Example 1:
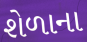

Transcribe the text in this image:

શેળાના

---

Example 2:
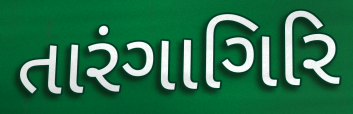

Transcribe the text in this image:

તારંગાગિરિ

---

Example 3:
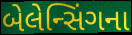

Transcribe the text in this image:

બેલેન્સિંગના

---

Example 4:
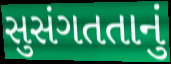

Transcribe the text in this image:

સુસંગતતાનું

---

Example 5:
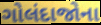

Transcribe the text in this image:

ગોલંદાજોના